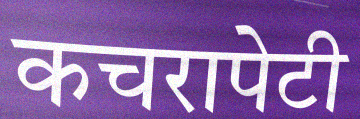
कचरापेटी